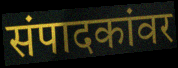
संपादकांवर